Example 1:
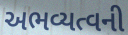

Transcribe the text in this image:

અભવ્યત્વની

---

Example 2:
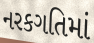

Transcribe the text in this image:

નરકગતિમાં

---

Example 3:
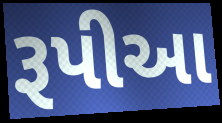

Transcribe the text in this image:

રૂપીઆ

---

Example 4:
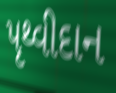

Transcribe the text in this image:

પૃથ્વીદાન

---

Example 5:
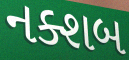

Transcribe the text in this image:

નક્શબ